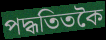
পদ্ধতিতকৈ